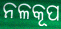
ନଳକୂପ